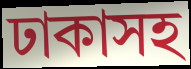
ঢাকাসহ